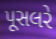
પૂસલરે